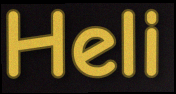
Heli